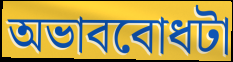
অভাববোধটা